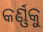
କର୍ଣ୍ଣକୁ